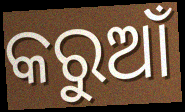
କରୁଆଁ